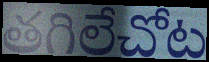
తగిలేచోట